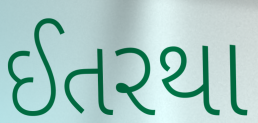
ઈતરથા